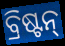
ବ୍ରିଷ୍ଟନ୍